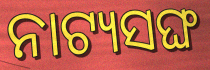
ନାଟ୍ୟସଙ୍ଘ